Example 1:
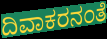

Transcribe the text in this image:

ದಿವಾಕರನಂತೆ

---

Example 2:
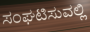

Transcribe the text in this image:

ಸಂಘಟಿಸುವಲ್ಲಿ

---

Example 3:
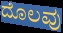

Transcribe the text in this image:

ದೊಲವು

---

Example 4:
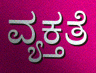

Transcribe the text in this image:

ವ್ಯಕ್ತತೆ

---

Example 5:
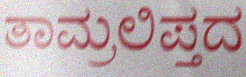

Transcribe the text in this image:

ತಾಮ್ರಲಿಪ್ತದ